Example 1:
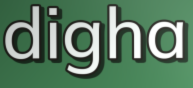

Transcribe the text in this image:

digha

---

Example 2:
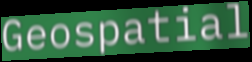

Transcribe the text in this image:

Geospatial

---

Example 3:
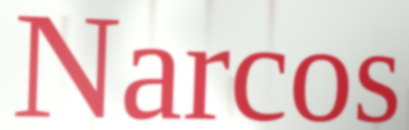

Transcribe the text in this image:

Narcos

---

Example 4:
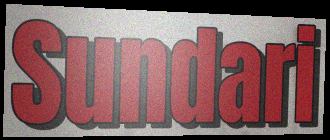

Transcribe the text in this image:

Sundari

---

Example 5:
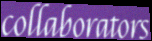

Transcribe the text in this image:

collaborators